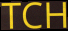
TCH